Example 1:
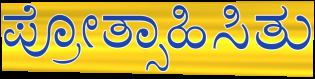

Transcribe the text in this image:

ಪ್ರೋತ್ಸಾಹಿಸಿತು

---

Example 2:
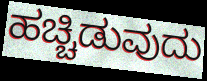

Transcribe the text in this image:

ಹಚ್ಚಿಡುವುದು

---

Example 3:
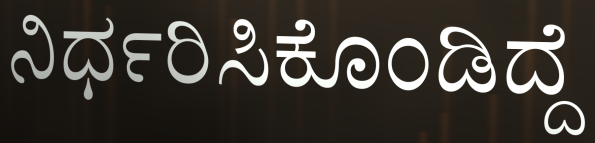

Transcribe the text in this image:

ನಿರ್ಧರಿಸಿಕೊಂಡಿದ್ದೆ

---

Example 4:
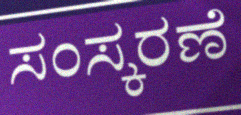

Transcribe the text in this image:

ಸಂಸ್ಕರಣೆ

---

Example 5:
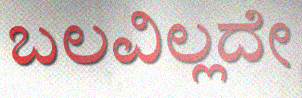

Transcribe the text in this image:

ಬಲವಿಲ್ಲದೇ